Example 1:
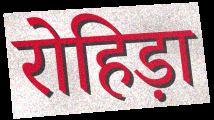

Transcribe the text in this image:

रोहिड़ा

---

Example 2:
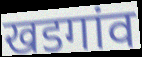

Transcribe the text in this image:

खडगांव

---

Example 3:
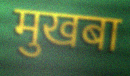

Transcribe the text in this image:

मुखबा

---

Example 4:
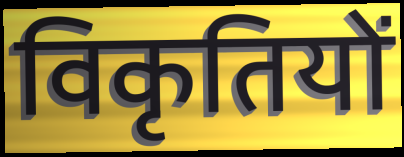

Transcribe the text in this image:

विकृतियों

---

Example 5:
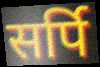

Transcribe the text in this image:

सर्पि